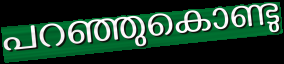
പറഞ്ഞുകൊണ്ടു